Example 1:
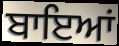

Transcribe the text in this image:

ਬਾਇਆਂ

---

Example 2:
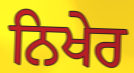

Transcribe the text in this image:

ਨਿਖੇਰ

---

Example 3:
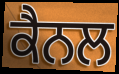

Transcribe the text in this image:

ਕੈਨਲ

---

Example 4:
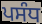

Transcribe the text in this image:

ਪਸੰਧ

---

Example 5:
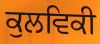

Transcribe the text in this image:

ਕੁਲਵਿਕੀ